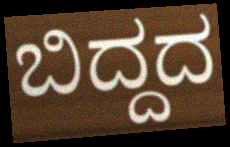
ಬಿದ್ದದ